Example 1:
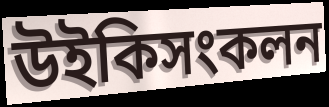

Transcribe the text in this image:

উইকিসংকলন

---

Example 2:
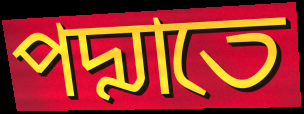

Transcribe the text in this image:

পদ্মাতে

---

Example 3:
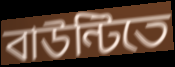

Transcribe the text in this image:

বাউন্টিতে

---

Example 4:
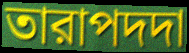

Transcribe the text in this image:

তারাপদদা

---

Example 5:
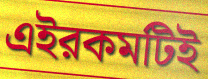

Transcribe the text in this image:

এইরকমটিই